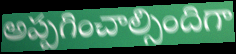
అప్పగించాల్సిందిగా